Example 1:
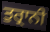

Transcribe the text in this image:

ਤੁਰ੍ਰਾਨੀ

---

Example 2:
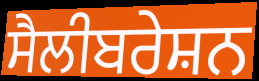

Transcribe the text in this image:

ਸੈਲੀਬਰੇਸ਼ਨ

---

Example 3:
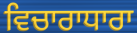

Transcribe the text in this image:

ਵਿਚਾਰਾਧਾਰਾ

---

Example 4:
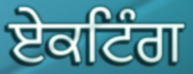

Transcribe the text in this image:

ਏਕਟਿੰਗ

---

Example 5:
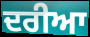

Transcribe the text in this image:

ਦਰੀਆ